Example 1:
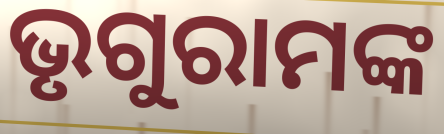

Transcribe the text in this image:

ଭୃଗୁରାମଙ୍କ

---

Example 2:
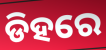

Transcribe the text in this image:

ଡିହରେ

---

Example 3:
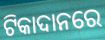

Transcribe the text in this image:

ଟିକାଦାନରେ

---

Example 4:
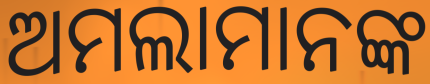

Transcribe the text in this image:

ଅମଲାମାନଙ୍କ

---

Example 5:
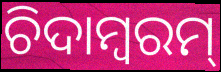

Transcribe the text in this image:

ଚିଦାମ୍ବରମ୍